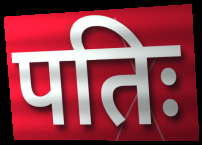
पतिः